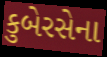
કુબેરસેના